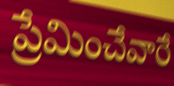
ప్రేమించేవారే